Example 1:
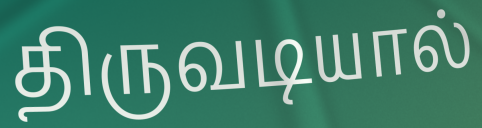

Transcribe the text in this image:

திருவடியால்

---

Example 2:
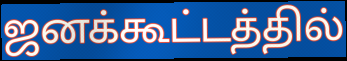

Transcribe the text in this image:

ஜனக்கூட்டத்தில்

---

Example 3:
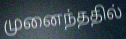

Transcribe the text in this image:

முனைந்ததில்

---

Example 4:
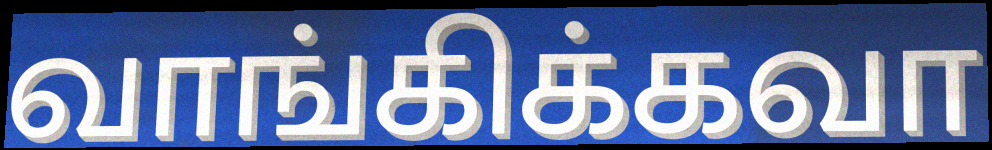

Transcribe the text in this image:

வாங்கிக்கவா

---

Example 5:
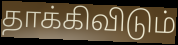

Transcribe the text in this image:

தாக்கிவிடும்